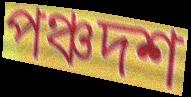
পঞ্চদশ